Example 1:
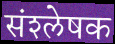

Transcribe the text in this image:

संश्लेषक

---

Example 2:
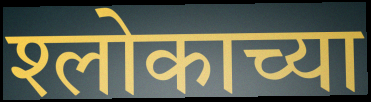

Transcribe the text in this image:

श्लोकाच्या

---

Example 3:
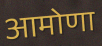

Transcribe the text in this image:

आमोणा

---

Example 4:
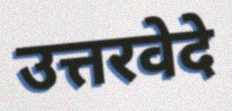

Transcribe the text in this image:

उत्तरवेदे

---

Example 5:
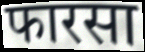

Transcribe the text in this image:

फारसा